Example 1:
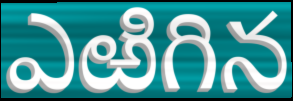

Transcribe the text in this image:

ఎఱిగిన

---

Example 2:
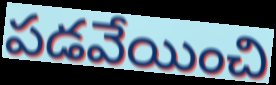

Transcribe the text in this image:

పడవేయించి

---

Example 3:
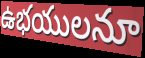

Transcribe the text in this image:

ఉభయులనూ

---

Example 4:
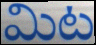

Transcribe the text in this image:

మిట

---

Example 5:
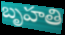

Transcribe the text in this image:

బృహతి